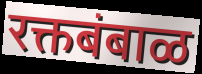
रक्तबंबाळ